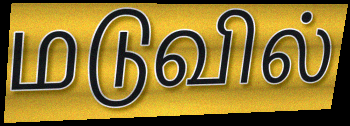
மடுவில்